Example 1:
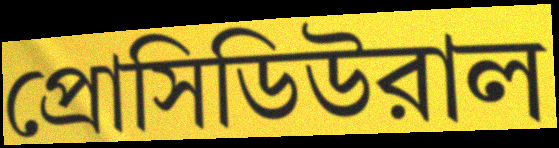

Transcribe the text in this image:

প্রোসিডিউরাল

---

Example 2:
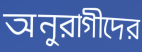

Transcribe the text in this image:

অনুরাগীদের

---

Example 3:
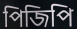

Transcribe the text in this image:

পিজিপি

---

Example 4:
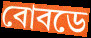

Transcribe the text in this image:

বোবডে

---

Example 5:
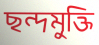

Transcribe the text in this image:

ছন্দমুক্তি